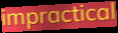
impractical